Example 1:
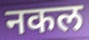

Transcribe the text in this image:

नकल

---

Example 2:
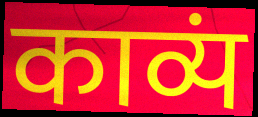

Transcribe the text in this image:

काव्यं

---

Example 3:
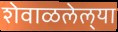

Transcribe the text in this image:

शेवाळलेल्या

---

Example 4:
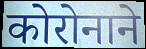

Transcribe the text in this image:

कोरोनाने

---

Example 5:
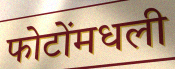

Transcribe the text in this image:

फोटोंमधली